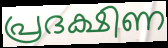
പ്രദക്ഷിണ